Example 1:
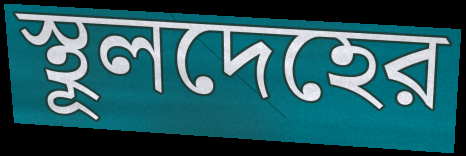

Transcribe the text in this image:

স্থূলদেহের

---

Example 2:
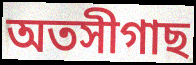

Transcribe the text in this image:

অতসীগাছ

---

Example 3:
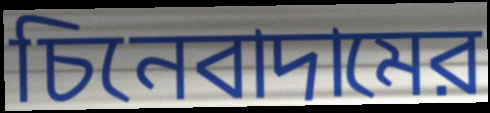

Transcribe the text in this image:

চিনেবাদামের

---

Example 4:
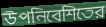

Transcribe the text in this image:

উপনিবেশিতের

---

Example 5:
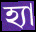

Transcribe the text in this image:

হ্যা